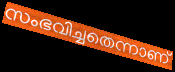
സംഭവിച്ചതെന്നാണ്